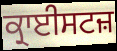
ਕ੍ਰਾਈਸਟਜ਼